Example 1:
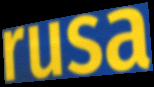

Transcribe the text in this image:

rusa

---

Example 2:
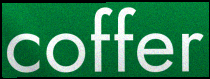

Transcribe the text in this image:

coffer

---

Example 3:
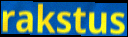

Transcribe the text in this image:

rakstus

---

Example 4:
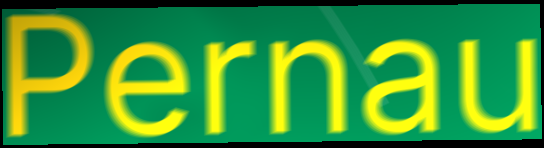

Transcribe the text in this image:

Pernau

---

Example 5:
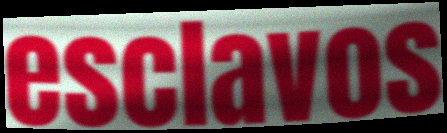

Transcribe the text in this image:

esclavos